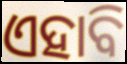
ଏହାବି